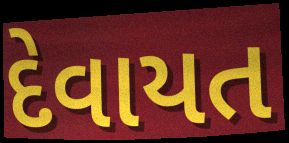
દેવાયત